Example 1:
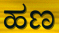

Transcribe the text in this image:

ಹಣ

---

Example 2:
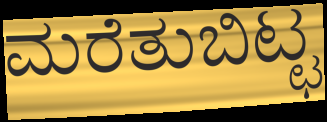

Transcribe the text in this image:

ಮರೆತುಬಿಟ್ಟ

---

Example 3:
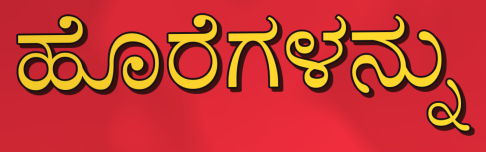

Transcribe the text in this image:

ಹೊರೆಗಳನ್ನು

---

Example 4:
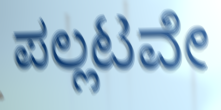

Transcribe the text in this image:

ಪಲ್ಲಟವೇ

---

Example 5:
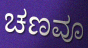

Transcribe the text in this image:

ಚಣವೂ